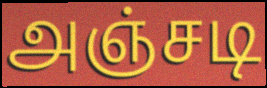
அஞ்சடி